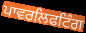
ਪਾਵਰਲਿਫਟਿੰਗ